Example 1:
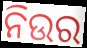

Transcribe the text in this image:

ନିଉର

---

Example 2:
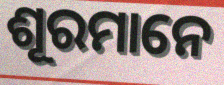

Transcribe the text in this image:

ଶୂରମାନେ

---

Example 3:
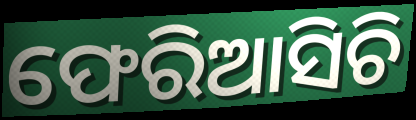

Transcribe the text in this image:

ଫେରିଆସିଚି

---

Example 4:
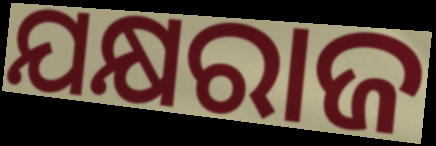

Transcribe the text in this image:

ଯକ୍ଷରାଜ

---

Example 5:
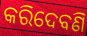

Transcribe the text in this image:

କରିଦେବଣି